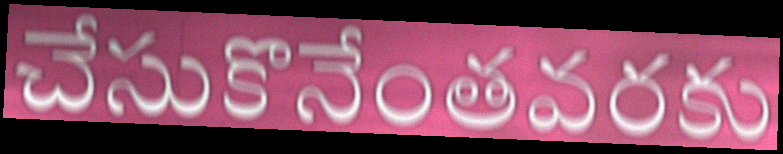
చేసుకొనేంతవరకు